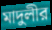
মাদুলীর